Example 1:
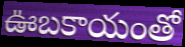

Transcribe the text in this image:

ఊబకాయంతో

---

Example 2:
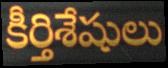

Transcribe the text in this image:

కీర్తిశేషులు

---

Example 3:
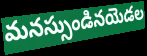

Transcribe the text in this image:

మనస్సుండినయెడల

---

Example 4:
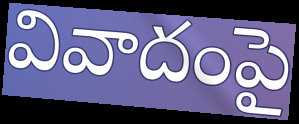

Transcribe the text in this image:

వివాదంపై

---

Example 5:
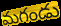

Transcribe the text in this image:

మగండు